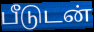
பீடுடன்